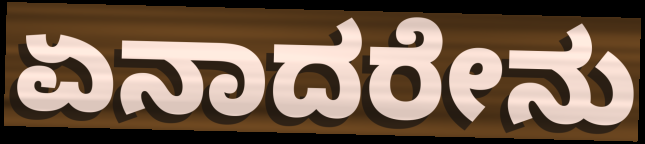
ಏನಾದರೇನು